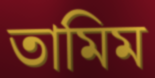
তামিম